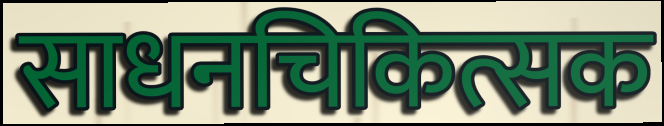
साधनचिकित्सक